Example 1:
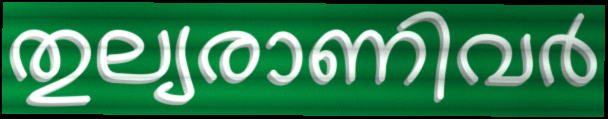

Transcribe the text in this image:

തുല്യരാണിവർ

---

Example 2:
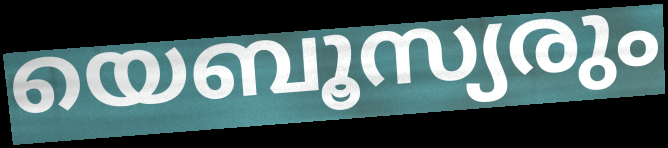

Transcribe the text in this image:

യെബൂസ്യരും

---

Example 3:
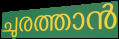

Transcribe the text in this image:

ചുരത്താൻ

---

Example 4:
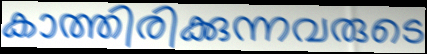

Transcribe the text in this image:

കാത്തിരിക്കുന്നവരുടെ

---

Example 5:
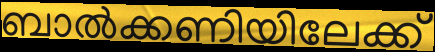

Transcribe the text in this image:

ബാൽക്കണിയിലേക്ക്